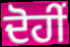
ਦੋਹੀਂ